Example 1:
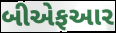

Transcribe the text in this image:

બીએફઆર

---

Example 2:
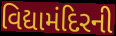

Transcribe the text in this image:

વિદ્યામંદિરની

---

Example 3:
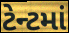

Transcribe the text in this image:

ટેન્ટમાં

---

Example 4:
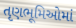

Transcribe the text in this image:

તૃણભૂમિઓમાં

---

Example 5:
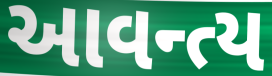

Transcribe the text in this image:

આવન્ત્ય